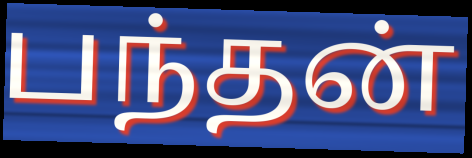
பந்தன்